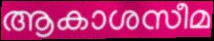
ആകാശസീമ